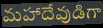
మహాదేవుడిగా